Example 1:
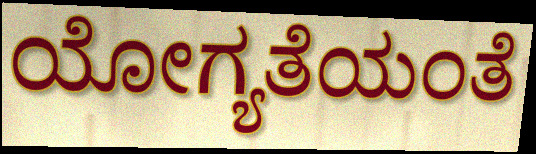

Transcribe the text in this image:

ಯೋಗ್ಯತೆಯಂತೆ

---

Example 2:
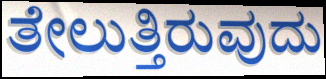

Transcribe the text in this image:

ತೇಲುತ್ತಿರುವುದು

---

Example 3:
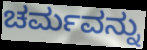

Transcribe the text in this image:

ಚರ್ಮವನ್ನು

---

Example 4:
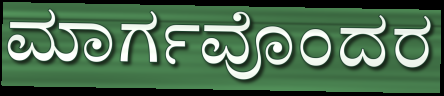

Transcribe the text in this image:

ಮಾರ್ಗವೊಂದರ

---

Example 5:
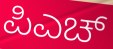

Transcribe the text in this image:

ಪಿಎಚ್